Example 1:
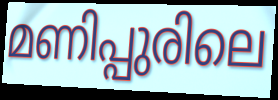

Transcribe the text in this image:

മണിപ്പുരിലെ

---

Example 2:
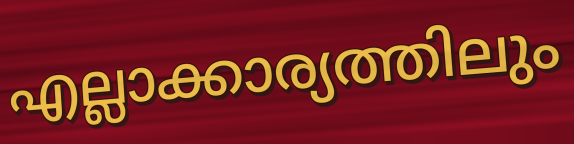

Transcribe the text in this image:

എല്ലാക്കാര്യത്തിലും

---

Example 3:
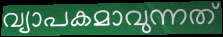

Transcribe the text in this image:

വ്യാപകമാവുന്നത്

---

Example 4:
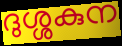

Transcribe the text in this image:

ദുശ്ശകുന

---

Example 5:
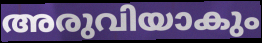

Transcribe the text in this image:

അരുവിയാകും